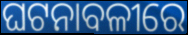
ଘଟନାବଳୀରେ